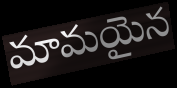
మామయైన